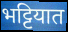
भट्टियात